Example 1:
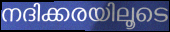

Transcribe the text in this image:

നദിക്കരയിലൂടെ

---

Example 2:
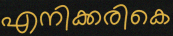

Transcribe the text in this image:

എനിക്കരികെ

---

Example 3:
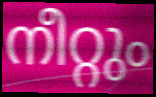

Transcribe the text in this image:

നീറ്റും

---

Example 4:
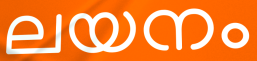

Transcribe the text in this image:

ലയനം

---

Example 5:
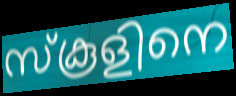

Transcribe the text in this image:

സ്കൂളിനെ